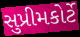
સુપ્રીમકોર્ટે